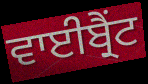
ਵਾਈਬ੍ਰੈਂਟ